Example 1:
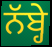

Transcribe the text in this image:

ਨੱਬ੍ਹੇ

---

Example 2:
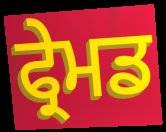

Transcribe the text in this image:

ਫ੍ਰੇਮਡ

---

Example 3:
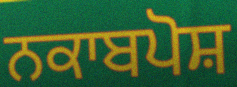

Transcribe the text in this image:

ਨਕਾਬਪੋਸ਼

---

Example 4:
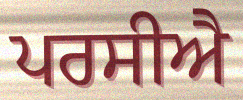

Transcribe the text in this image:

ਪਰਸੀਐ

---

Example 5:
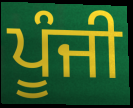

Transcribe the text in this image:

ਪੂੰਜੀ